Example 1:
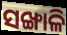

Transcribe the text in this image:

ସଙ୍ଖାଳି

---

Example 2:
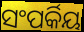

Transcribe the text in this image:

ସଂପର୍କିୟ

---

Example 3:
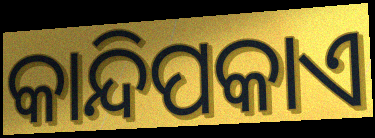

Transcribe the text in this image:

କାନ୍ଦିପକାଏ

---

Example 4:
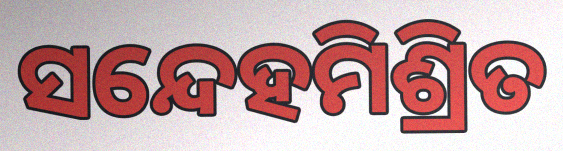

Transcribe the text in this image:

ସନ୍ଦେହମିଶ୍ରିତ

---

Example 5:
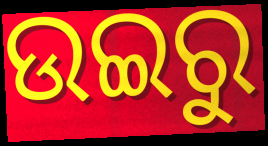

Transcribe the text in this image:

ଉଇରୁ